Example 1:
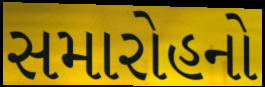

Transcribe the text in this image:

સમારોહનો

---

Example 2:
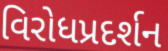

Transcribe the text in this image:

વિરોધપ્રદર્શન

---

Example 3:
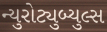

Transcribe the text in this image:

ન્યુરોટ્યુબ્યુલ્સ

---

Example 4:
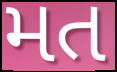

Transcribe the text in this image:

મત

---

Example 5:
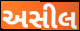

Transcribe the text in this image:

અસીલ